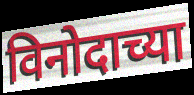
विनोदाच्या